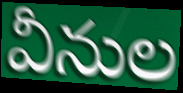
వీనుల